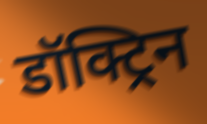
डॉक्ट्रिन